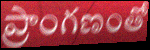
ప్రాంగణంతో